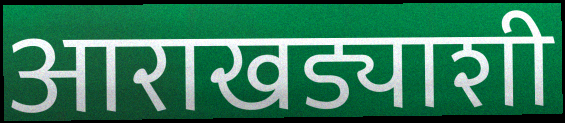
आराखड्याशी